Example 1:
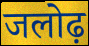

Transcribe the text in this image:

जलोढ़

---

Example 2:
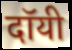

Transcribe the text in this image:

दॉयी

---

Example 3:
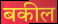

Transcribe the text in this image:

बकील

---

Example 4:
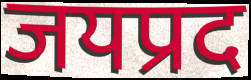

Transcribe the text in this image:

जयप्रद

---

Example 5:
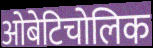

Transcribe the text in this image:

ओबेटिचोलिक